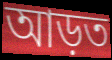
আড়ত